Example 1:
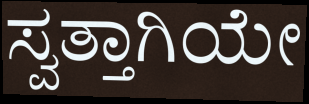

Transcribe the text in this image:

ಸ್ವತ್ತಾಗಿಯೇ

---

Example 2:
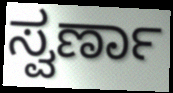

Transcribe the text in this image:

ಸ್ವರ್ಣಾ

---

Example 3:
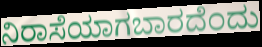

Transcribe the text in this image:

ನಿರಾಸೆಯಾಗಬಾರದೆಂದು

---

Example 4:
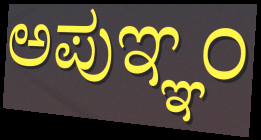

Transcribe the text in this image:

ಅಪುಞ್ಞಂ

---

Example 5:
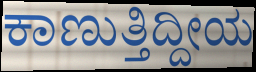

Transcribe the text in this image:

ಕಾಣುತ್ತಿದ್ದೀಯ